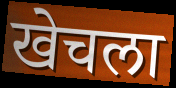
खेचला